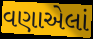
વણાએલાં